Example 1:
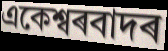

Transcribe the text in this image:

একেশ্বৰবাদৰ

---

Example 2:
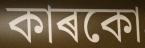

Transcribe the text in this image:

কাৰকো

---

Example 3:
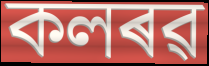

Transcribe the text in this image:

কলৰৱ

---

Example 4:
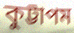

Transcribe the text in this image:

কুট্টাপম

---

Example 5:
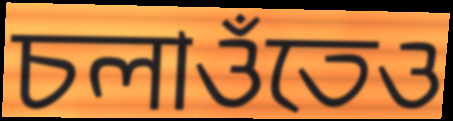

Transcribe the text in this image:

চলাওঁতেও